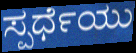
ಸ್ಪರ್ಧೆಯು